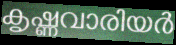
കൃഷ്ണവാരിയർ